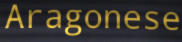
Aragonese